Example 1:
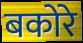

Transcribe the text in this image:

बकोरे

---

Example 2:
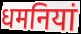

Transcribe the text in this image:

धमनियां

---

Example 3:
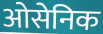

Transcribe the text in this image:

ओसेनिक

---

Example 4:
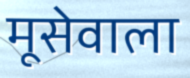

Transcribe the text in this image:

मूसेवाला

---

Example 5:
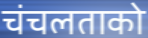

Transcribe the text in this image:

चंचलताको